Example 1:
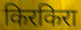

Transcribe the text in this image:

किरकिरा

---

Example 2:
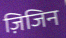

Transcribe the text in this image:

ज़िजिन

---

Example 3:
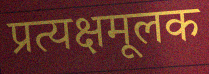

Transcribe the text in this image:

प्रत्यक्षमूलक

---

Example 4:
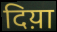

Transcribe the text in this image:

दिय़ा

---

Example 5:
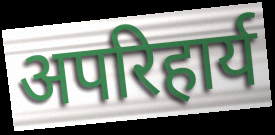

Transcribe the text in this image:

अपरिहार्य